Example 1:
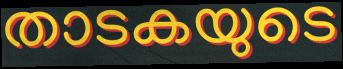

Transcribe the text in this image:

താടകയുടെ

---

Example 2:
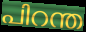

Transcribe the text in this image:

പിറന്ത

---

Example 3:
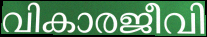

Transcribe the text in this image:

വികാരജീവി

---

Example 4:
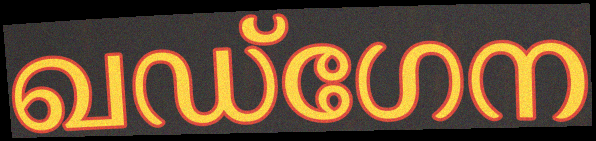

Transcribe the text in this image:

ഖഡ്ഗേന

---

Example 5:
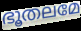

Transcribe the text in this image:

ഭൂതലമേ